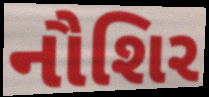
નૌશિર